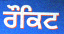
ਰੌਕਿਟ